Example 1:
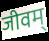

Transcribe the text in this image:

जीवम्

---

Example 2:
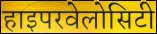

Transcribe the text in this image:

हाइपरवेलोसिटी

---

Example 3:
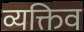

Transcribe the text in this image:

व्यक्तिव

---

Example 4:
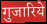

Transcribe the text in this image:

गुजारिये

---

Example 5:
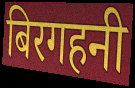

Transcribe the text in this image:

बिरगहनी